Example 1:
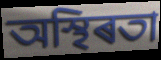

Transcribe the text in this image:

অস্থিৰতা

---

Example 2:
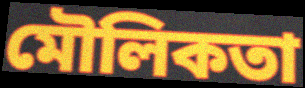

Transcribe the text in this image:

মৌলিকতা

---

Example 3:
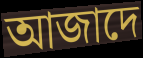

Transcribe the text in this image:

আজাদে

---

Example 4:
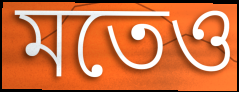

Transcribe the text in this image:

মতেও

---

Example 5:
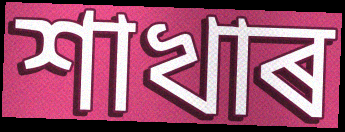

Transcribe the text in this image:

শাখাৰ